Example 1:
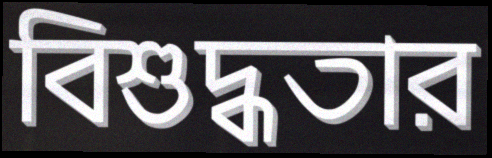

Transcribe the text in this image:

বিশুদ্ধতার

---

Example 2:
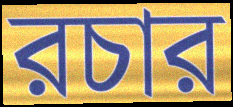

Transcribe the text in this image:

রচার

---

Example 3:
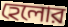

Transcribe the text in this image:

হেলোর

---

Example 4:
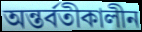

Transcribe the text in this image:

অন্তর্বতীকালীন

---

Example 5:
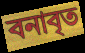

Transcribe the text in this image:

বনাবৃত